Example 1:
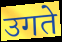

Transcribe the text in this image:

उगते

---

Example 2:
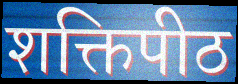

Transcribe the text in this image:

शक्तिपीठ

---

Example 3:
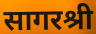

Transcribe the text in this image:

सागरश्री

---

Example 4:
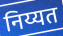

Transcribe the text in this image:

निय्यत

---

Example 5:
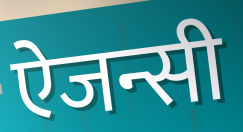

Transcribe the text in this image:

ऐजन्सी